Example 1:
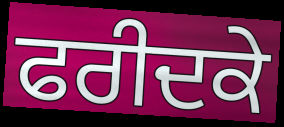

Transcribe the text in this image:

ਫਰੀਦਕੇ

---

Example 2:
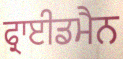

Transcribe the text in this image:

ਫ੍ਰਾਈਡਮੈਨ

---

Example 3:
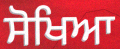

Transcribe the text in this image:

ਸੋਖਿਆ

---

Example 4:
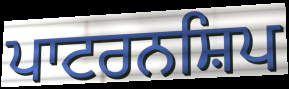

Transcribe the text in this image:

ਪਾਟਰਨਸ਼ਿਪ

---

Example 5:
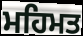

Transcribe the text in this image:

ਮਹਿਮਤ